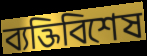
ব্যক্তিবিশেষ